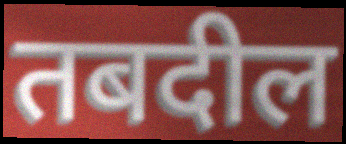
तबदील